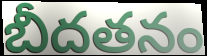
బీదతనం